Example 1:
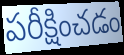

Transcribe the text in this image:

పరీక్షించడం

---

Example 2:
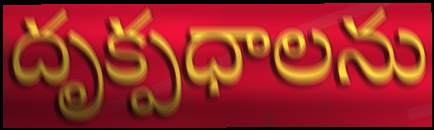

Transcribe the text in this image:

దృక్పధాలను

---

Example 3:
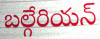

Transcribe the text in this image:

బల్గేరియన్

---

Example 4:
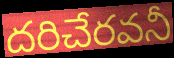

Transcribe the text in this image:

దరిచేరవనీ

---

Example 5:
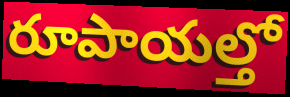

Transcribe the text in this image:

రూపాయల్తో